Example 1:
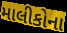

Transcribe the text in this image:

માલીકોના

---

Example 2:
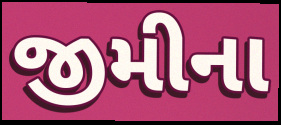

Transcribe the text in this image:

જીમીના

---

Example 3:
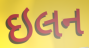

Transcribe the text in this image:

ઇલન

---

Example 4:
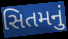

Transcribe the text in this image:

સિતમનું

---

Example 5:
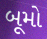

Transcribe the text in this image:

બૂમો